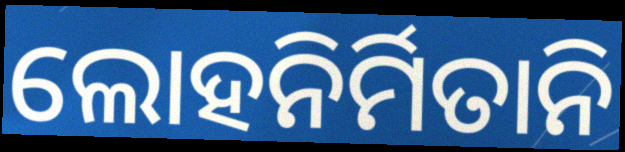
ଲୋହନିର୍ମିତାନି